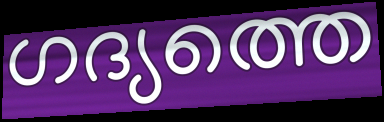
ഗദ്യത്തെ